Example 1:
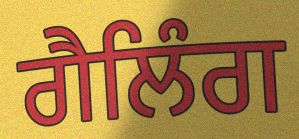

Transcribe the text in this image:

ਗੈਲਿੰਗ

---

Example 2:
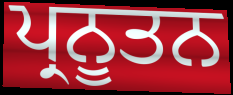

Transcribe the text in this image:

ਪ੍ਰਨੂਤਨ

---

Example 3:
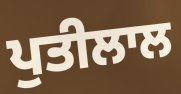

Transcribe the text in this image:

ਪੁਤੀਲਾਲ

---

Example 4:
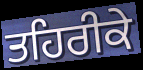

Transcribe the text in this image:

ਤਹਿਰੀਕੇ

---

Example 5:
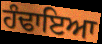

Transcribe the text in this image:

ਹੰਢਾਇਆ